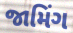
જામિંગ